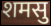
शमसु